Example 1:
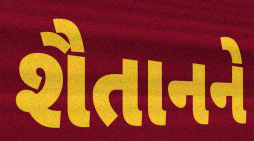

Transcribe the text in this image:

શૈતાનને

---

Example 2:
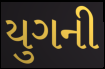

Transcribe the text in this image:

યુગની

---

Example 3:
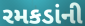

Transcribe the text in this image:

રમકડાંની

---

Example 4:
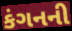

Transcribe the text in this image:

કંગનની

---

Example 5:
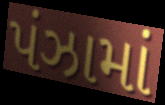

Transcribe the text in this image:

પંઝામાં